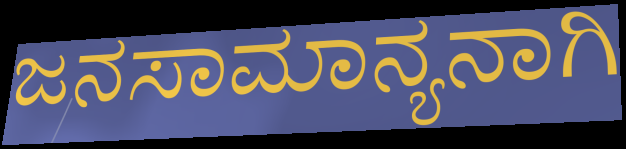
ಜನಸಾಮಾನ್ಯನಾಗಿ